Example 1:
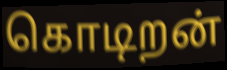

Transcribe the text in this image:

கொடிறன்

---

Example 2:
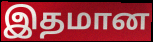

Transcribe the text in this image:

இதமான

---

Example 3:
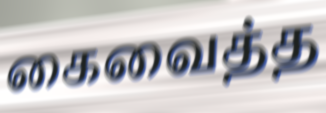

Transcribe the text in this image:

கைவைத்த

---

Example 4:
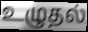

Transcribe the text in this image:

உழுதல்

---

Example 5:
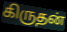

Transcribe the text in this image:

கிருதன்